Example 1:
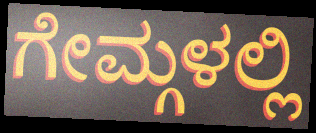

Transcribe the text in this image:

ಗೇಮ್ಗಳಲ್ಲಿ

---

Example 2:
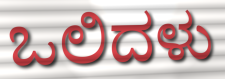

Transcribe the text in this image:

ಒಲಿದಳು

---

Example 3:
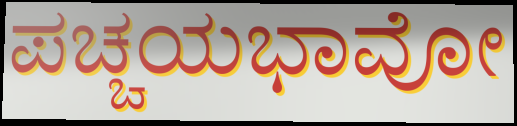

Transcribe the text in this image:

ಪಚ್ಚಯಭಾವೋ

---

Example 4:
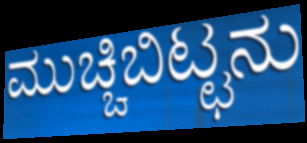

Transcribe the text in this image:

ಮುಚ್ಚಿಬಿಟ್ಟನು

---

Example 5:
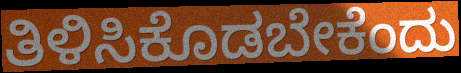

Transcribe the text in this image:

ತಿಳಿಸಿಕೊಡಬೇಕೆಂದು